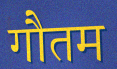
गौतम